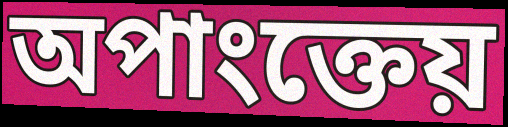
অপাংক্তেয়